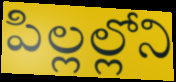
పిల్లల్లోని